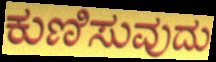
ಕುಣಿಸುವುದು